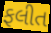
ફલીત